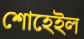
শোহেইল